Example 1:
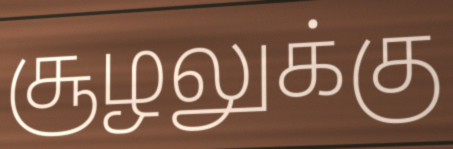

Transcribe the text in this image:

சூழலுக்கு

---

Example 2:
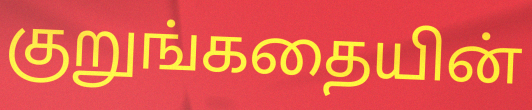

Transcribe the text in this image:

குறுங்கதையின்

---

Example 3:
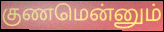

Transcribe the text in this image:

குணமென்னும்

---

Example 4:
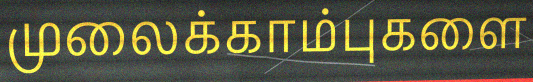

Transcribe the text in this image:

முலைக்காம்புகளை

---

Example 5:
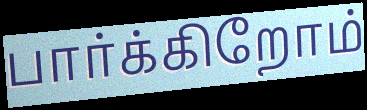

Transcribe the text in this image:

பார்க்கிறோம்